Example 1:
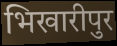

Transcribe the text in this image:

भिखारीपुर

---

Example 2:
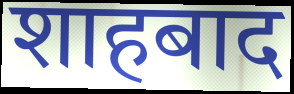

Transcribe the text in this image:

शाहबाद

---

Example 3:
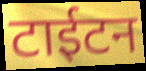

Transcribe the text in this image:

टाईटन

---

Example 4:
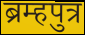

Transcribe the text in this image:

ब्रम्हपुत्र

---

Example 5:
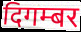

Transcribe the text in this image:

दिगम्बर